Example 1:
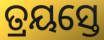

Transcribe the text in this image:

ତ୍ରୟସ୍ତେ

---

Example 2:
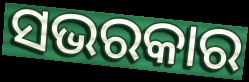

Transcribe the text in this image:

ସଭରକାର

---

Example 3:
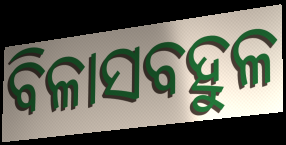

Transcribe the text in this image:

ବିଳାସବହୁଳ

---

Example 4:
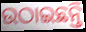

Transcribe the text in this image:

ଉଠାଇଛନ୍ତି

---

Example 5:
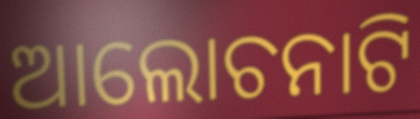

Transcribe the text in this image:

ଆଲୋଚନାଟି